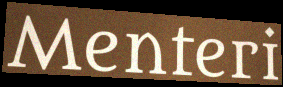
Menteri